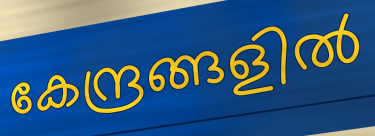
കേന്ദ്രങ്ങളിൽ